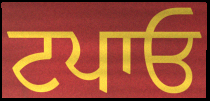
ਟਪਾਓ